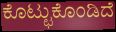
ಕೊಟ್ಟುಕೊಂಡಿದೆ